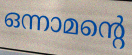
ഒന്നാമന്റെ